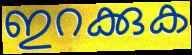
ഇറക്കുക